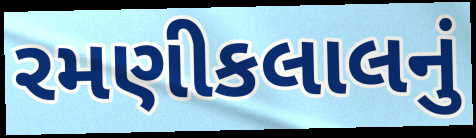
રમણીકલાલનું